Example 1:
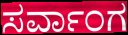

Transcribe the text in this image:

ಸರ್ವಾಂಗ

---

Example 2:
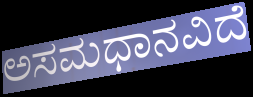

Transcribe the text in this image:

ಅಸಮಧಾನವಿದೆ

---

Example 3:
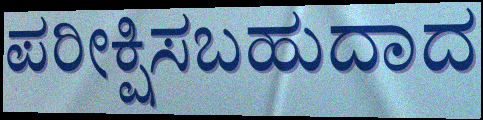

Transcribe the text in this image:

ಪರೀಕ್ಷಿಸಬಹುದಾದ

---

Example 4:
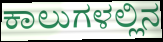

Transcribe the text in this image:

ಕಾಲುಗಳಲ್ಲಿನ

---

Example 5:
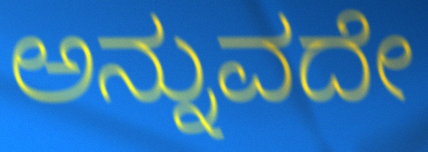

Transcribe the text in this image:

ಅನ್ನುವದೇ